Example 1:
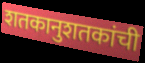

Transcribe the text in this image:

शतकानुशतकांची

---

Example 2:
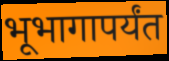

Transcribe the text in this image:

भूभागापर्यंत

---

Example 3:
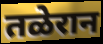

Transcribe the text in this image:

तळेरान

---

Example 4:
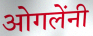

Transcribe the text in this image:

ओगलेंनी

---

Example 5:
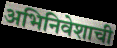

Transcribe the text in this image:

अभिनिवेशाची